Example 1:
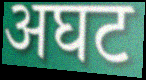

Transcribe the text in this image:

अघट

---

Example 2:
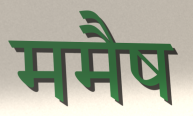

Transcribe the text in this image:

ममैष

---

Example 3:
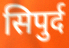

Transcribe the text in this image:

सिपुर्द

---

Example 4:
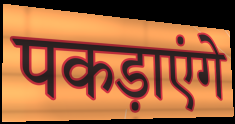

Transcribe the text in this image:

पकड़ाएंगे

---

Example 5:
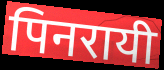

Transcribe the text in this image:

पिनरायी